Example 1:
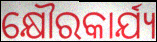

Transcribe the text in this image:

କ୍ଷୌରକାର୍ଯ୍ୟ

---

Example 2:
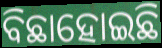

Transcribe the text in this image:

ବିଛାହୋଇଛି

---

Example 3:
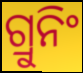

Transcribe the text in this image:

ଗ୍ରୁନିଂ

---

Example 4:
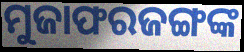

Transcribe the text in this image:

ମୁଜାଫରଜଙ୍ଗଙ୍କ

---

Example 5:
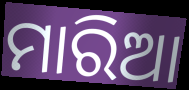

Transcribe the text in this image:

ମାରିଆ